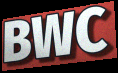
BWC